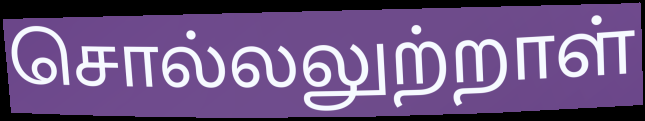
சொல்லலுற்றாள்